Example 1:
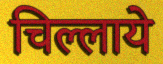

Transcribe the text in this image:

चिल्लाये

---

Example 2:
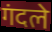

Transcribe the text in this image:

गंदले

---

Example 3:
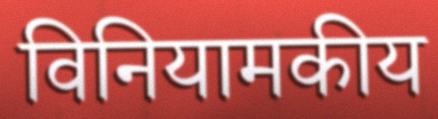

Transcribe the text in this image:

विनियामकीय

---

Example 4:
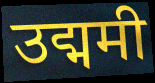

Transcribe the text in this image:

उद्ममी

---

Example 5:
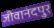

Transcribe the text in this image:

जीवानंदपुर